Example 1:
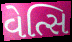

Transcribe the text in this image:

વેત્સિ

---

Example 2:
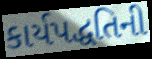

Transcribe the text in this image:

કાર્યપદ્ધતિની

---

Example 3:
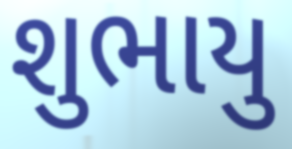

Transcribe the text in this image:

શુભાયુ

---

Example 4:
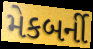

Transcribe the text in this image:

મેકબર્ની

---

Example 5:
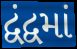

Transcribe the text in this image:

દ્વંદ્વમાં